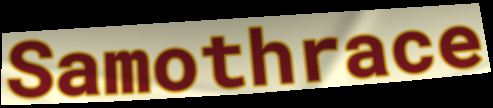
Samothrace